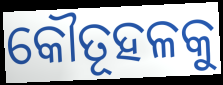
କୌତୂହଳକୁ